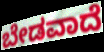
ಬೇಡವಾದೆ